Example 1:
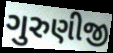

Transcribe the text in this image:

ગુરુણીજી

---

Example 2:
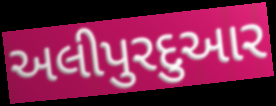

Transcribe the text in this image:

અલીપુરદુઆર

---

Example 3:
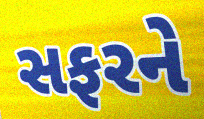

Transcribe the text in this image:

સફરને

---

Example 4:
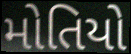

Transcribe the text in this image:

મોતિયો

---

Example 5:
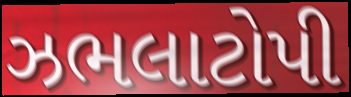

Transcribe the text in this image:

ઝભલાટોપી